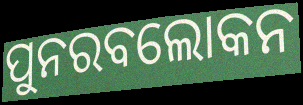
ପୁନରବଲୋକନ